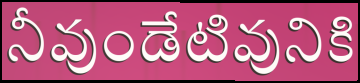
నీవుండేటివునికి